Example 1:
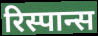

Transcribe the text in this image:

रिस्पान्स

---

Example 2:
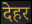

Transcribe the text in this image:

देहर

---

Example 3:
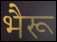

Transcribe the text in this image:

भैरू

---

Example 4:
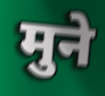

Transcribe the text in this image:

मुने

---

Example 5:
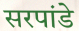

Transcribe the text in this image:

सरपांडे